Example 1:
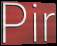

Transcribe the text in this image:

Pir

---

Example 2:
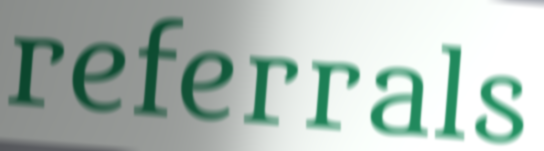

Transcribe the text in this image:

referrals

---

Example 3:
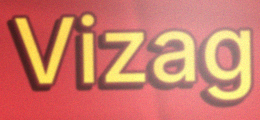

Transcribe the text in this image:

Vizag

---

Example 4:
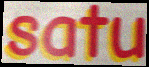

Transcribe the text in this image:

satu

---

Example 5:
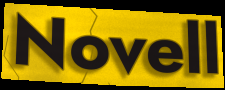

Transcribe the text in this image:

Novell